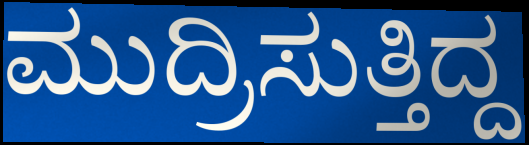
ಮುದ್ರಿಸುತ್ತಿದ್ದ